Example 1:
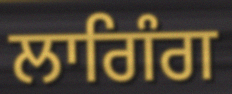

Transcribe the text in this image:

ਲਾਗਿੰਗ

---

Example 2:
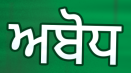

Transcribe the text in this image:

ਅਬੋਧ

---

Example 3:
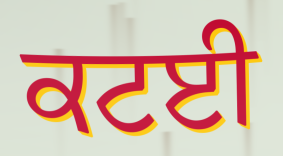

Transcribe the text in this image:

ਕਟਈ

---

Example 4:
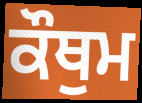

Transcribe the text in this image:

ਕੌਥੁਮ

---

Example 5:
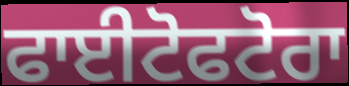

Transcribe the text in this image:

ਫਾਈਟੋਫਟੋਰਾ